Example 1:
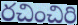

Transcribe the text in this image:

రచించిరి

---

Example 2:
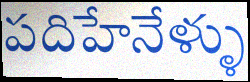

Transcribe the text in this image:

పదిహేనేళ్ళు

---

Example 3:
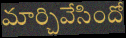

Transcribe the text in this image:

మార్చివేసిందో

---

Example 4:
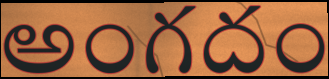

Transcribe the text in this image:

అంగదం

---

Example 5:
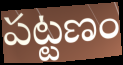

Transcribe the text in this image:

పట్టణం